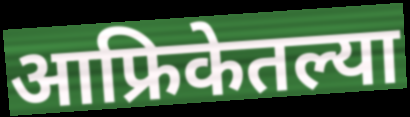
आफ्रिकेतल्या